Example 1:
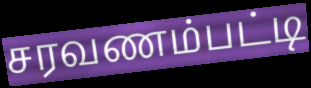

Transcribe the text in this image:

சரவணம்பட்டி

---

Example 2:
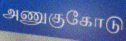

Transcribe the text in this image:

அணுகுகோடு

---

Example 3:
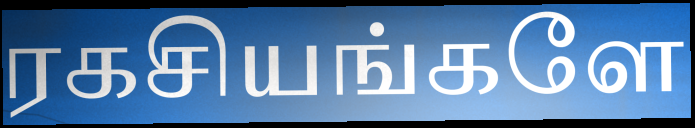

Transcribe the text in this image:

ரகசியங்களே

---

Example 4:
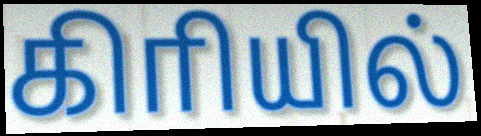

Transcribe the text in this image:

கிரியில்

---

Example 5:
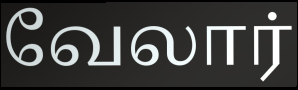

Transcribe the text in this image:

வேலார்